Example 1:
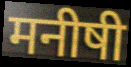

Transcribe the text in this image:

मनीषी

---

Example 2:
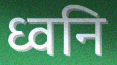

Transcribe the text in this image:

ध्वनि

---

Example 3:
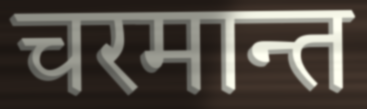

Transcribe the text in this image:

चरमान्त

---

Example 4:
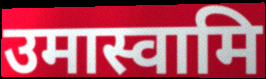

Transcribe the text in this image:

उमास्वामि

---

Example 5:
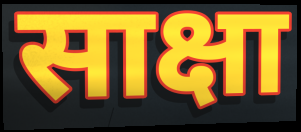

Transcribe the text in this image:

साक्षा